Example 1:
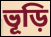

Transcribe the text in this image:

ভূড়ি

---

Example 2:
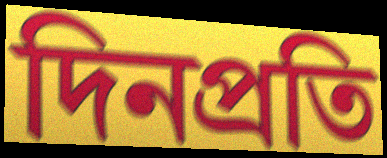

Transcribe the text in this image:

দিনপ্রতি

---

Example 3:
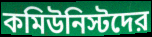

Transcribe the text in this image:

কমিউনিস্টদের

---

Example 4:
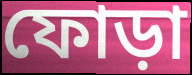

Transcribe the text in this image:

ফোড়া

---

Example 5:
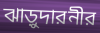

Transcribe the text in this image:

ঝাড়ুদারনীর